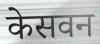
केसवन